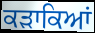
ਕੜਾਕਿਆਂ